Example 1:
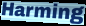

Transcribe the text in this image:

Harming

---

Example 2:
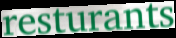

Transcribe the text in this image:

resturants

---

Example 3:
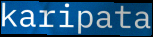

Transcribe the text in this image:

karipata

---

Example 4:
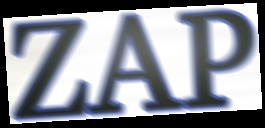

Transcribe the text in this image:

ZAP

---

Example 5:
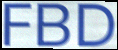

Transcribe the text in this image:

FBD